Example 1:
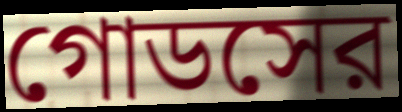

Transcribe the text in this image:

গোডসের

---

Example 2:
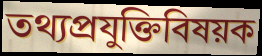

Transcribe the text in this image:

তথ্যপ্রযুক্তিবিষয়ক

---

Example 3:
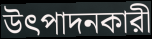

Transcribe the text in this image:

উৎপাদনকারী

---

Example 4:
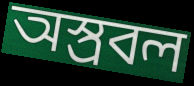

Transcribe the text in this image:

অস্ত্রবল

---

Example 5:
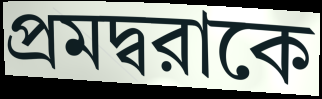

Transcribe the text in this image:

প্রমদ্বরাকে